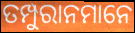
ତମ୍ପୁରାନମାନେ